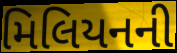
મિલિયનની